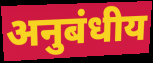
अनुबंधीय